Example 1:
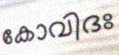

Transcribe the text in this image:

കോവിദഃ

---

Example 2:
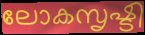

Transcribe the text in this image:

ലോകസൃഷ്ടി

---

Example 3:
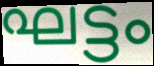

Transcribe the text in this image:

ഘട്ടം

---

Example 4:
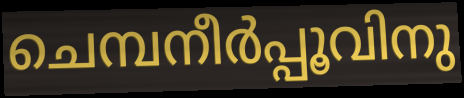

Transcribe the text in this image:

ചെമ്പനീർപ്പൂവിനു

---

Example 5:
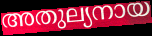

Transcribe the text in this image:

അതുല്യനായ